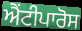
ਐਂਟੀਪਾਰੋਸ